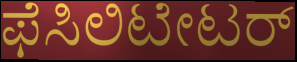
ಫೆಸಿಲಿಟೇಟರ್